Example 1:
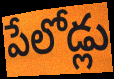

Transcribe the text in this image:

పేలోడ్లు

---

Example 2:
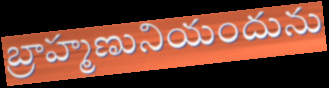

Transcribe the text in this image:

బ్రాహ్మణునియందును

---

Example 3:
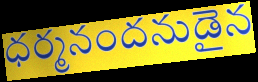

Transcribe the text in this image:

ధర్మనందనుడైన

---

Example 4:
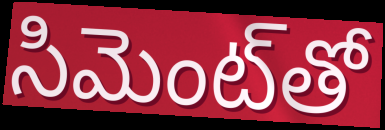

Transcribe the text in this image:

సిమెంట్‌తో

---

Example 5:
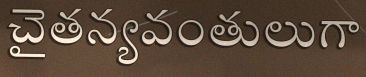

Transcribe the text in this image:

చైతన్యవంతులుగా